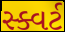
સ્ક્વર્ટ